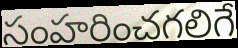
సంహరించగలిగే